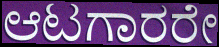
ಆಟಗಾರರೇ